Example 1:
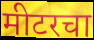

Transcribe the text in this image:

मीटरचा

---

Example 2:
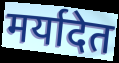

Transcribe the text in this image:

मर्यादेत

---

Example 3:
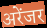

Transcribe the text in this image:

अरेंजर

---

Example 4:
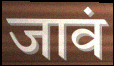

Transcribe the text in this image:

जावं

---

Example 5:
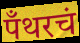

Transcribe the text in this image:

पँथरचं